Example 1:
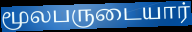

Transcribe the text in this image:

மூலபருடையார்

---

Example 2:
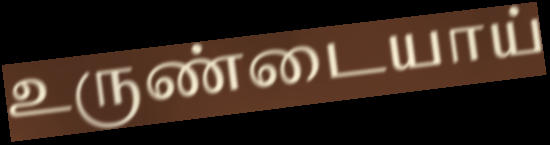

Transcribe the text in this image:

உருண்டையாய்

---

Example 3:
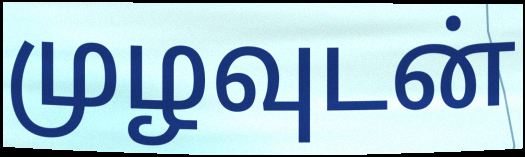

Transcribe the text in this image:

முழவுடன்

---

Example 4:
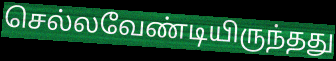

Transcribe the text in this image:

செல்லவேண்டியிருந்தது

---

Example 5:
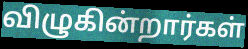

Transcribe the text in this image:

விழுகின்றார்கள்